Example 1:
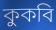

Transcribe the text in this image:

কুকবি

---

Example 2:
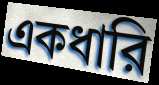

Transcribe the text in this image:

একধারি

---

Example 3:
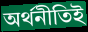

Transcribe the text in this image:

অর্থনীতিই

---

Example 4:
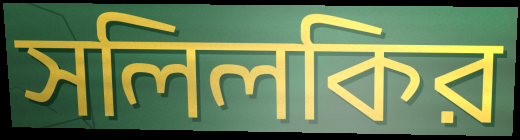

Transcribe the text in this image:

সলিলকির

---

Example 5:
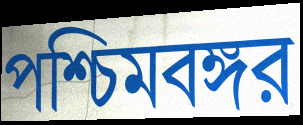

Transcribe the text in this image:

পশ্চিমবঙ্গর